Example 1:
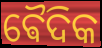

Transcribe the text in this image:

ଵୈଦିକ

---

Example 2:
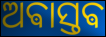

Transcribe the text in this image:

ଅଵାସ୍ତଵ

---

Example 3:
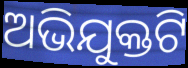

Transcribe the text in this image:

ଅଭିଯୁକ୍ତଟି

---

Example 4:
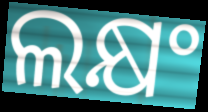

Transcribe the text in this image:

ଲକ୍ଷଂ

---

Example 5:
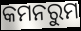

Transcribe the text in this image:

କମନରୁମ